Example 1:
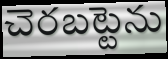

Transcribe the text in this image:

చెరబట్టెను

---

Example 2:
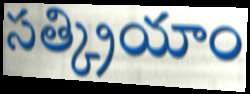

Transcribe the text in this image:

సత్క్రియాం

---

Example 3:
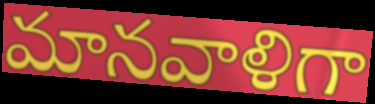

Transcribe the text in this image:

మానవాళిగా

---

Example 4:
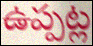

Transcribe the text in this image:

ఉప్పట్ల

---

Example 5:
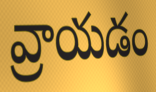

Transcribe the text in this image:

వ్రాయడం